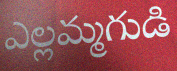
ఎల్లమ్మగుడి